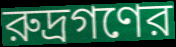
রুদ্রগণের